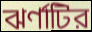
ঝর্ণাটির